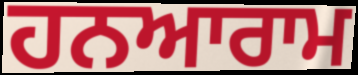
ਹਨਆਰਾਮ